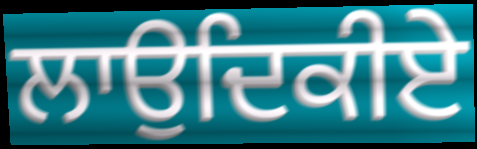
ਲਾਉਦਿਕੀਏ